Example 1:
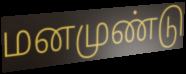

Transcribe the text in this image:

மனமுண்டு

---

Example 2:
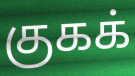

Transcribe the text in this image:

குகக்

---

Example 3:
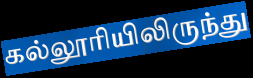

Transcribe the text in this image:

கல்லூரியிலிருந்து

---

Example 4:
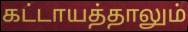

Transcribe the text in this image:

கட்டாயத்தாலும்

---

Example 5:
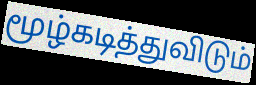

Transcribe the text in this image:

மூழ்கடித்துவிடும்